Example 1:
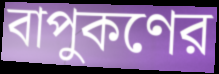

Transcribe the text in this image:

বাপুকণের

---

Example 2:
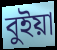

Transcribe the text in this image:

বুইয়া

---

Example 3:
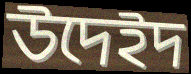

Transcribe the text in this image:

উদেইদ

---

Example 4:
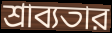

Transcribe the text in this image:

শ্রাব্যতার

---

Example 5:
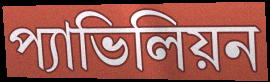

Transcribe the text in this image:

প্যাভিলিয়ন